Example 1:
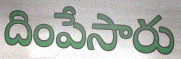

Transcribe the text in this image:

దింపేసారు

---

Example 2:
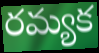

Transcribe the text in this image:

రమ్యక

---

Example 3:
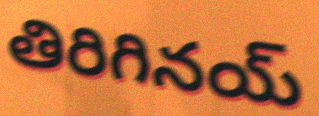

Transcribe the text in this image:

తిరిగినయ్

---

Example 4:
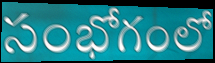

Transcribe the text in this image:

సంభోగంలో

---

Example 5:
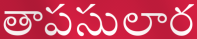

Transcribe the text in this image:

తాపసులార